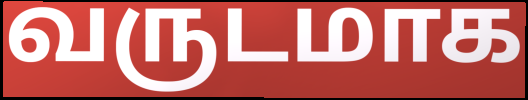
வருடமாக